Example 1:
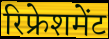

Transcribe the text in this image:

रिफ्रेशमेंट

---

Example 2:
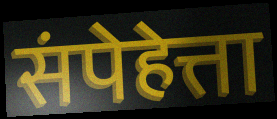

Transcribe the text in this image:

संपेहेत्ता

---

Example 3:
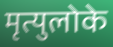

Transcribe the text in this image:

मृत्युलोके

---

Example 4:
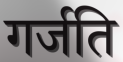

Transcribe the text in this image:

गर्जति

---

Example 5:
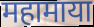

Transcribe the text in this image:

महामाया